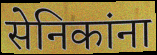
सेनिकांना